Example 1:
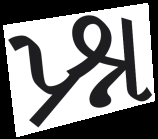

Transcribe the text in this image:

પ્ર્શ્ન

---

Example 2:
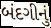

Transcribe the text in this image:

બંદગીનું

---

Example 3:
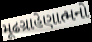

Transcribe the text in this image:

મૂઢગ્રાહેણાત્મનો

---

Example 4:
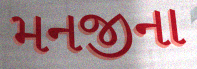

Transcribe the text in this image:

મનજીના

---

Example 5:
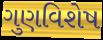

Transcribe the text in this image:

ગુણવિશેષ